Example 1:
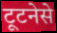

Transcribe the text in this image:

टूटनेसे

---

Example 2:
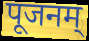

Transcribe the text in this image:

पूजनम्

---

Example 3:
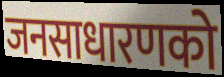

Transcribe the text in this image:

जनसाधारणको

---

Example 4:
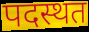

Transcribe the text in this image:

पदस्थत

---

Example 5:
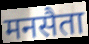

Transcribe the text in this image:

मनसैता